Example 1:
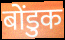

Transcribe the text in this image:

बोंडुक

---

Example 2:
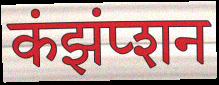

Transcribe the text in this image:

कंझंप्शन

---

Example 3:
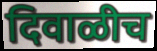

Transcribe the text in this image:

दिवाळीच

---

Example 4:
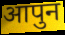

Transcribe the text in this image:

आपुन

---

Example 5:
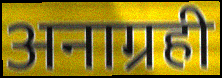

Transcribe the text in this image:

अनाग्रही